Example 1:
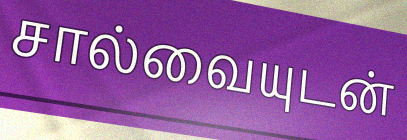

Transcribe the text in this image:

சால்வையுடன்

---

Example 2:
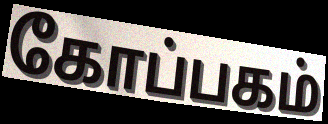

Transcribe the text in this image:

கோப்பகம்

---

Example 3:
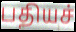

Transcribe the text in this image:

பதியச்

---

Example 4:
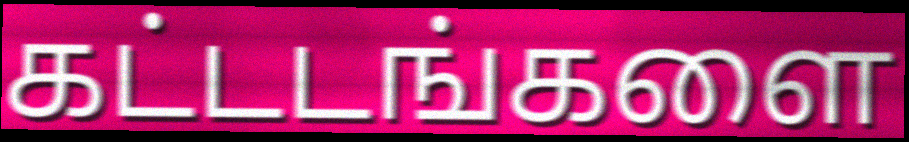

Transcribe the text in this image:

கட்டடங்களை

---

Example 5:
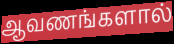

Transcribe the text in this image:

ஆவணங்களால்